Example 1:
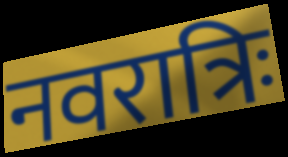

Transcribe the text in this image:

नवरात्रिः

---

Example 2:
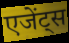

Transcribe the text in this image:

एजेंट्स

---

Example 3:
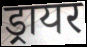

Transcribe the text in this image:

ड्रायर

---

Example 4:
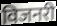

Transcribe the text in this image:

विजनरी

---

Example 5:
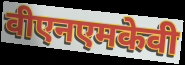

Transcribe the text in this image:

वीएनएमकेवी